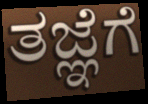
ತಜ್ಞೆಗೆ